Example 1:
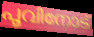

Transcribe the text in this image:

പൂവിനോട്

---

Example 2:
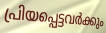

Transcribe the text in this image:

പ്രിയപ്പെട്ടവർക്കും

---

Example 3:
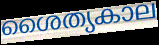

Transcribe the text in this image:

ശൈത്യകാല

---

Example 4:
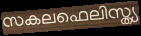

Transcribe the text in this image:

സകലഫെലിസ്ത്യ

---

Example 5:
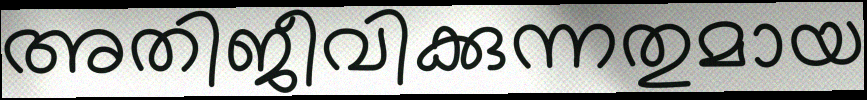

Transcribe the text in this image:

അതിജീവിക്കുന്നതുമായ